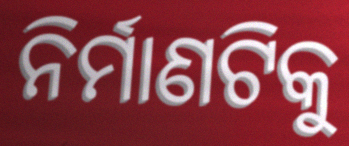
ନିର୍ମାଣଟିକୁ